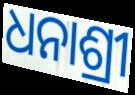
ଧନାଶ୍ରୀ